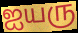
ஐயரு